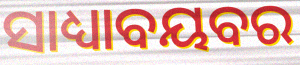
ସାଧ୍ୟାବୟବର